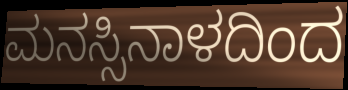
ಮನಸ್ಸಿನಾಳದಿಂದ